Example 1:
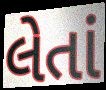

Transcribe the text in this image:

લેતાં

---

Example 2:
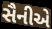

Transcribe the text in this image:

સૈનીએ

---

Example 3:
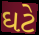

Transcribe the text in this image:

ઘટે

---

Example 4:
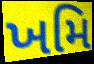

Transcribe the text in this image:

ખમિ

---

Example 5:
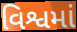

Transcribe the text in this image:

વિશ્વમાં